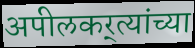
अपीलकर्त्यांच्या